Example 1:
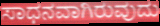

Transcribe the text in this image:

ಸಾಧನವಾಗಿರುವುದು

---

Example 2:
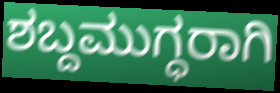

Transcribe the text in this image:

ಶಬ್ದಮುಗ್ಧರಾಗಿ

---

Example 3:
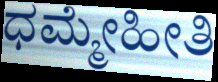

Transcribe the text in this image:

ಧಮ್ಮೇಹೀತಿ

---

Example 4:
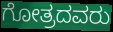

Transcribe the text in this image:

ಗೋತ್ರದವರು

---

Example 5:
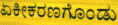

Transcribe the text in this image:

ಏಕೀಕರಣಗೊಂಡು